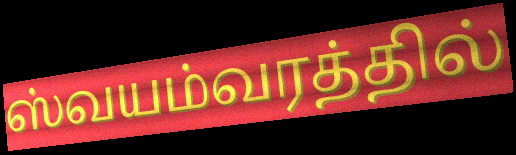
ஸ்வயம்வரத்தில்